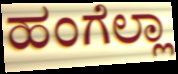
ಹಂಗೆಲ್ಲಾ